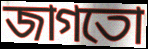
জাগতো